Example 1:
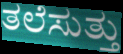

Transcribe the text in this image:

ತಲೆಸುತ್ತು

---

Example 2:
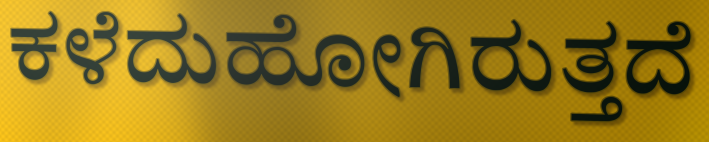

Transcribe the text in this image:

ಕಳೆದುಹೋಗಿರುತ್ತದೆ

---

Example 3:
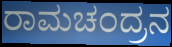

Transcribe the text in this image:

ರಾಮಚಂದ್ರನ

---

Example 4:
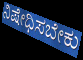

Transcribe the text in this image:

ನಿಷೇಧಿಸಬೇಕು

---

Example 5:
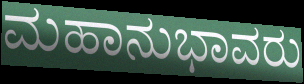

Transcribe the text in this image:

ಮಹಾನುಭಾವರು